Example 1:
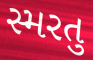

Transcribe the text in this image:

સ્મરતુ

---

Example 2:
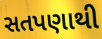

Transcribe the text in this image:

સતપણાથી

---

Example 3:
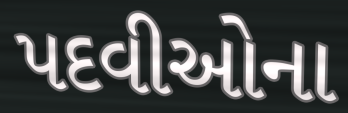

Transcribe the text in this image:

પદવીઓના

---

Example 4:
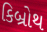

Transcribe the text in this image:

કિબ્રોથ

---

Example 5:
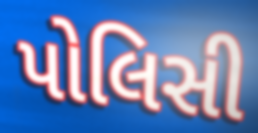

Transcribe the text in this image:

પોલિસી